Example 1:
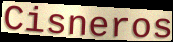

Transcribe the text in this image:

Cisneros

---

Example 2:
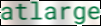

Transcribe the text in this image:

atlarge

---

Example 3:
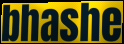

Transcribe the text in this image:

bhashe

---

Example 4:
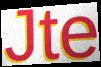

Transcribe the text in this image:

Jte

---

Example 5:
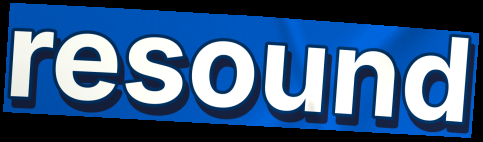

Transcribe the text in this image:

resound